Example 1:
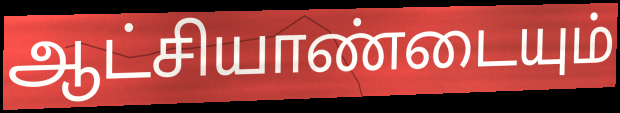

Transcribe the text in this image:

ஆட்சியாண்டையும்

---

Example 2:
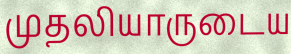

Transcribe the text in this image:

முதலியாருடைய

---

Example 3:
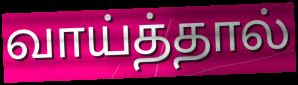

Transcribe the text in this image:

வாய்த்தால்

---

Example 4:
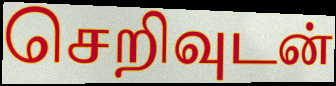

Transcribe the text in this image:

செறிவுடன்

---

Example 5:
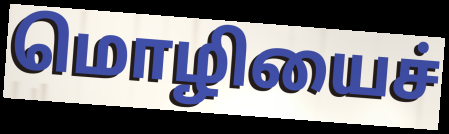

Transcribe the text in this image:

மொழியைச்